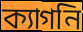
ক্যাগনি